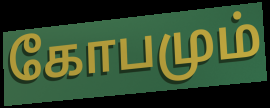
கோபமும்